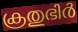
ക്രതുഭിർ